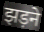
झड़ने